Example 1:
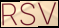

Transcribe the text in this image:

RSV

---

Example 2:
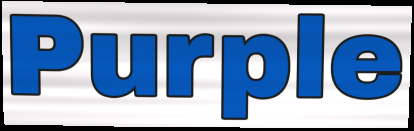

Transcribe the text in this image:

Purple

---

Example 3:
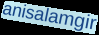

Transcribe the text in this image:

anisalamgir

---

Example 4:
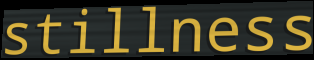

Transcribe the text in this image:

stillness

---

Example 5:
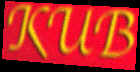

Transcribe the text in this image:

KUB